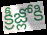
క్రీజ్లోకి